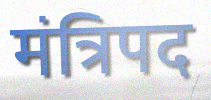
मंत्रिपद